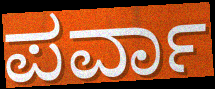
ಪರ್ವಾ